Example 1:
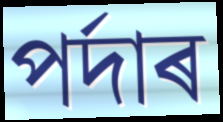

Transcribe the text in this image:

পৰ্দাৰ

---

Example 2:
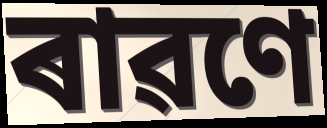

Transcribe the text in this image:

ৰাৱণে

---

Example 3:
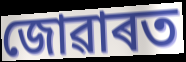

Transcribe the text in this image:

জোৱাৰত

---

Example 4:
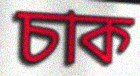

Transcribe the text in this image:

চাক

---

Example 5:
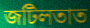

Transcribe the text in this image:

জটিলতাত